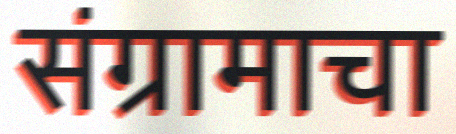
संग्रामाचा